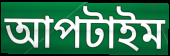
আপটাইম